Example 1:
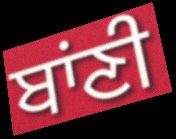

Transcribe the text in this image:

ਬਾਂਣੀ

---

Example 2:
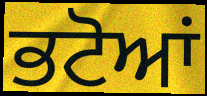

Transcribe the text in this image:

ਭਟੋਆਂ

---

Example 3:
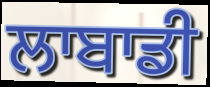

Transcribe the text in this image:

ਲਾਬਾਡੀ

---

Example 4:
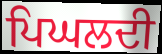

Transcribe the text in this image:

ਪਿਘਲਦੀ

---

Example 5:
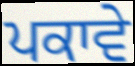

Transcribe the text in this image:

ਪਕਾਵੇ